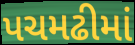
પચમઢીમાં